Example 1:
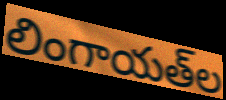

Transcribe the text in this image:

లింగాయత్‌ల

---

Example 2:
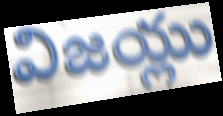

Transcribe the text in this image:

విజయ్లు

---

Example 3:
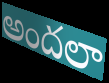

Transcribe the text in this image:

అందలా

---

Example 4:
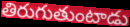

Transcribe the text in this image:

తిరుగుతుంటాడు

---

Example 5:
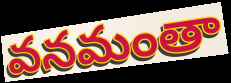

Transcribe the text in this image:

వనమంతా